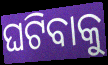
ଘଟିବାକୁ